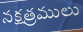
నక్షత్రములు